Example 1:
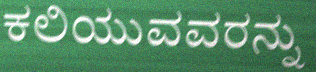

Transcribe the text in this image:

ಕಲಿಯುವವರನ್ನು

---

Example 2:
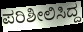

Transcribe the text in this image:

ಪರಿಶೀಲಿಸಿದ್ದ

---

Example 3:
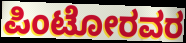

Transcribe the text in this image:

ಪಿಂಟೋರವರ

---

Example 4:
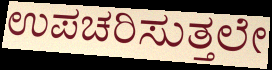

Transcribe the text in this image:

ಉಪಚರಿಸುತ್ತಲೇ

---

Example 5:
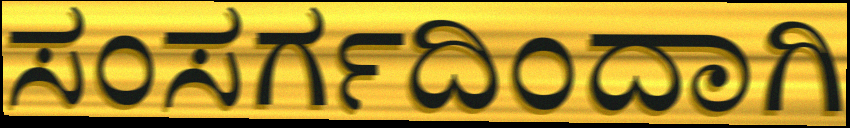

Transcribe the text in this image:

ಸಂಸರ್ಗದಿಂದಾಗಿ